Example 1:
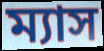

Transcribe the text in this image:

ম্যাস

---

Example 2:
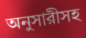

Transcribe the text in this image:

অনুসারীসহ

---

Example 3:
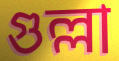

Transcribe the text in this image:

গুল্লা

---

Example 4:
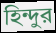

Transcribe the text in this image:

হিন্দুর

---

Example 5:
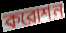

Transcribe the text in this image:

করোশন